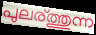
പുലര്ത്തുന്ന